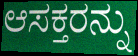
ಆಸಕ್ತರನ್ನು